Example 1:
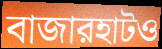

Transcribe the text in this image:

বাজারহাটও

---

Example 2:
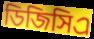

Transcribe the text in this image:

ডিজিসিএ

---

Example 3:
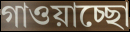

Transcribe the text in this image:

গাওয়াচ্ছো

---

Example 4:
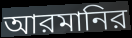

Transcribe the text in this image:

আরমানির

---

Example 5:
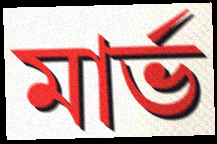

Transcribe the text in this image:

মার্ভ